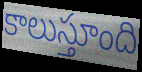
కాలుస్తూంది